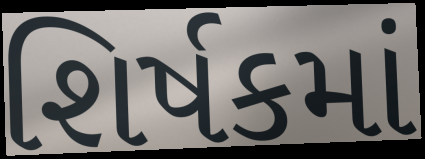
શિર્ષકમાં